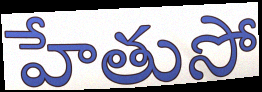
హేతుసో